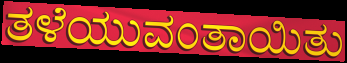
ತಳೆಯುವಂತಾಯಿತು